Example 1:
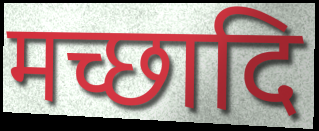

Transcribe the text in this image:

मच्छादि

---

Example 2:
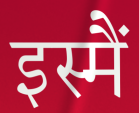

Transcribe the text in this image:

इस्मैं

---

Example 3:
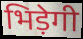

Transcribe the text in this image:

भिड़ेगी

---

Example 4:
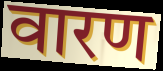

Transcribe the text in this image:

वारण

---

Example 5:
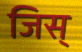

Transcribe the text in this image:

जिस्